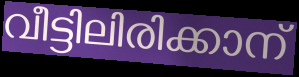
വീട്ടിലിരിക്കാന്